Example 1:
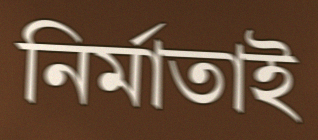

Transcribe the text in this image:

নির্মাতাই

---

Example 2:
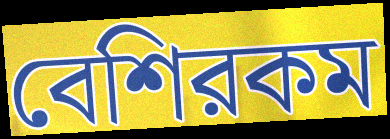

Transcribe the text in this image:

বেশিরকম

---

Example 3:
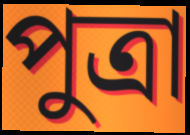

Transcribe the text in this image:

পুত্রা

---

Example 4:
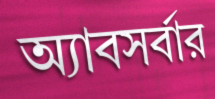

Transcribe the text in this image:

অ্যাবসর্বার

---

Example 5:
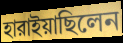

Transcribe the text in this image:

হারাইয়াছিলেন